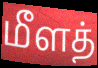
மீளத்